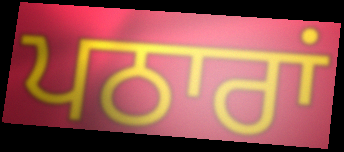
ਪਠਾਰਾਂ